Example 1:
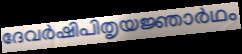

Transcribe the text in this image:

ദേവർഷിപിതൃയജ്ഞാർഥം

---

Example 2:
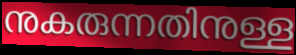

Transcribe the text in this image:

നുകരുന്നതിനുള്ള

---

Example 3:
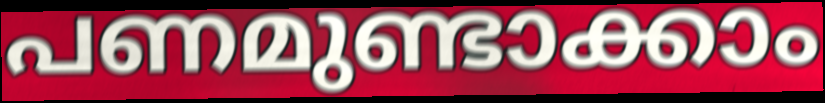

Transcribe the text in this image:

പണമുണ്ടാക്കാം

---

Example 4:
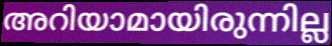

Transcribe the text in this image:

അറിയാമായിരുന്നില്ല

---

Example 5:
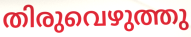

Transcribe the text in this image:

തിരുവെഴുത്തു